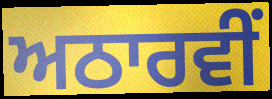
ਅਠਾਰਵੀਂ